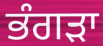
ਭੰਗੜਾ